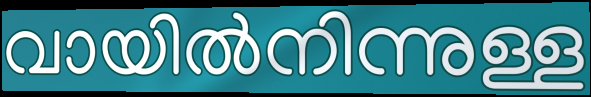
വായിൽനിന്നുള്ള